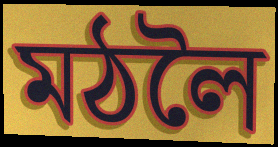
মঠলৈ